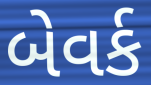
બેવર્ક